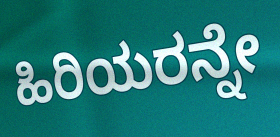
ಹಿರಿಯರನ್ನೇ